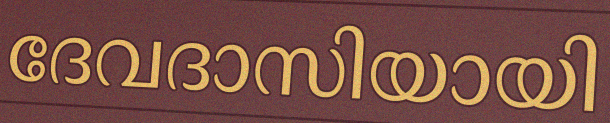
ദേവദാസിയായി